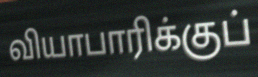
வியாபாரிக்குப்